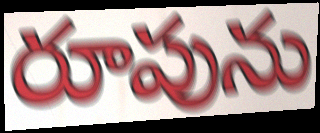
రూపును